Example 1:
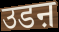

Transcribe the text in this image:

उडऩ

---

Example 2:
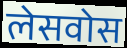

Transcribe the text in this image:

लेसवोस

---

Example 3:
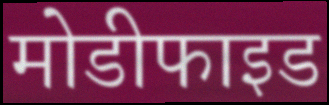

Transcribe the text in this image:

मोडीफाइड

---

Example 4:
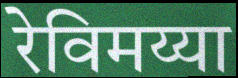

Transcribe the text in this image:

रेविमय्या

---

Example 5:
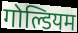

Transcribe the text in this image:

गोल्डियम